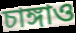
চাঙ্গাও